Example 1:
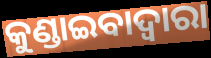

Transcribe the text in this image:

କୁଣ୍ଡାଇବାଦ୍ୱାରା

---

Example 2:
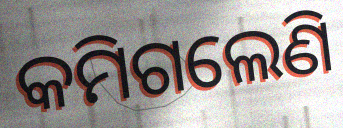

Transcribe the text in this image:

କମିଗଲେଣି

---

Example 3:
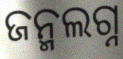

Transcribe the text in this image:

ଜନ୍ମଲଗ୍ନ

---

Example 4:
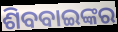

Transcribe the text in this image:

ଶିବବାଇଙ୍କର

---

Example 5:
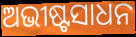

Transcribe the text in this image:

ଅଭୀଷ୍ଟସାଧନ